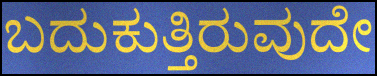
ಬದುಕುತ್ತಿರುವುದೇ